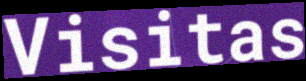
Visitas